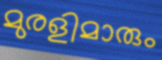
മുരളിമാരും